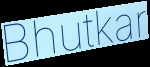
Bhutkar